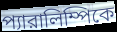
প্যারালিম্পিকে